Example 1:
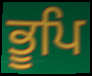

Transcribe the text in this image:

ਭੂਪਿ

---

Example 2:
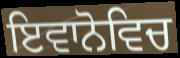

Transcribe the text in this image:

ਇਵਾਨੋਵਿਚ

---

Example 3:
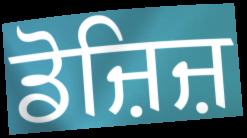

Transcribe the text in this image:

ਡੋਜ਼ਿਜ਼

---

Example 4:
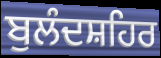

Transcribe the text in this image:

ਬੁਲੰਦਸ਼ਹਿਰ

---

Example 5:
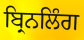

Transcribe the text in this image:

ਬ੍ਰਿਨਲਿੰਗ